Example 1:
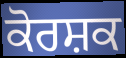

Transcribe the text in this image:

ਕੋਰਸ਼ਕ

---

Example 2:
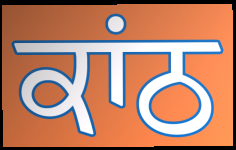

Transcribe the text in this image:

ਕਾਂਠ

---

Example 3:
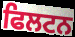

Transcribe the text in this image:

ਫਿਲਟਨ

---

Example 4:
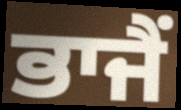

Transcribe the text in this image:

ਭਾਜੈਂ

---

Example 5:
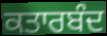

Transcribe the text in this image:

ਕਤਾਰਬੰਦ